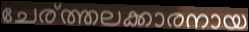
ചേര്ത്തലക്കാരനായ